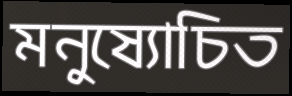
মনুষ্যোচিত